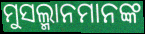
ମୁସଲ୍ମାନମାନଙ୍କ